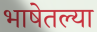
भाषेतल्या